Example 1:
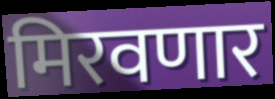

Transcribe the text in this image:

मिरवणार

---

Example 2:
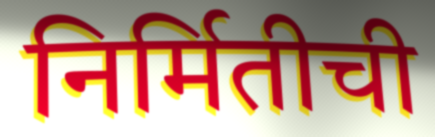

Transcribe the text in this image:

निर्मितीची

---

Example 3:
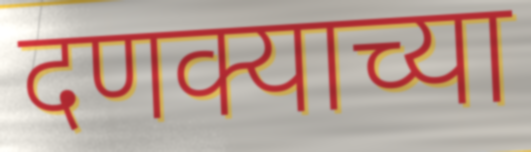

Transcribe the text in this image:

दणक्याच्या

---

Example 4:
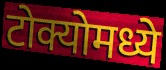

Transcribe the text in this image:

टोक्योमध्ये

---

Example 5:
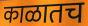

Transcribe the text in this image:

काळातच